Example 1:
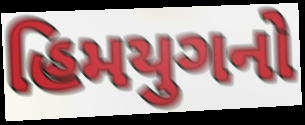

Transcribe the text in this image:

હિમયુગનો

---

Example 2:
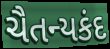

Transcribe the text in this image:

ચૈતન્યકંદ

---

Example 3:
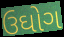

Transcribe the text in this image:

ઉઘોગ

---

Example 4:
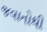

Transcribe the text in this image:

જવાનોથી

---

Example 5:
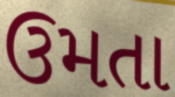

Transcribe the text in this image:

ઉમતા